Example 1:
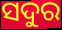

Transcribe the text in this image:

ସଦୁର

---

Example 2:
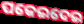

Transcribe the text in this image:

ପକେଇଦେଇ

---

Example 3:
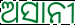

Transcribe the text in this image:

ଅସାନୀ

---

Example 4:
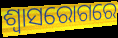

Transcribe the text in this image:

ଶ୍ଵାସରୋଗରେ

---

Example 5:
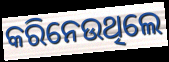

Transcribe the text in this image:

କରିନେଉଥିଲେ